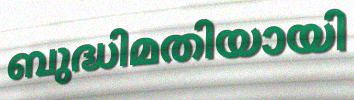
ബുദ്ധിമതിയായി